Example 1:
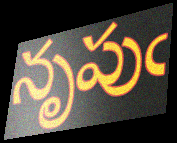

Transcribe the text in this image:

నృపుఁ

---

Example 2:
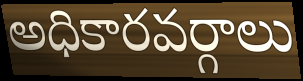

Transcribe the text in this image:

అధికారవర్గాలు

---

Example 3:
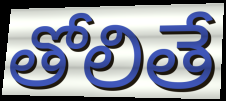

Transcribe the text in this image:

తోలితే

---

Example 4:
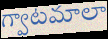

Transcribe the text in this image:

గ్వాటమాలా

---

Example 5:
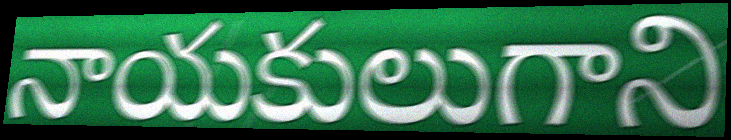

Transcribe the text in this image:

నాయకులుగాని